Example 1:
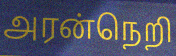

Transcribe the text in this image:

அரன்நெறி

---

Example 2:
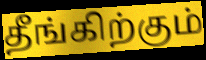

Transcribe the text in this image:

தீங்கிற்கும்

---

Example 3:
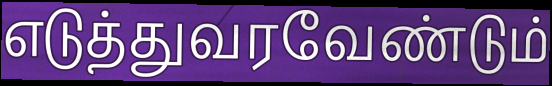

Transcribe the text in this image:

எடுத்துவரவேண்டும்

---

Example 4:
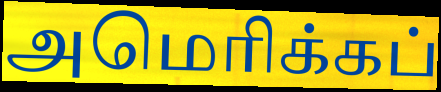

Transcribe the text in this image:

அமெரிக்கப்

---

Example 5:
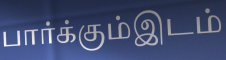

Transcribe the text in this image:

பார்க்கும்இடம்